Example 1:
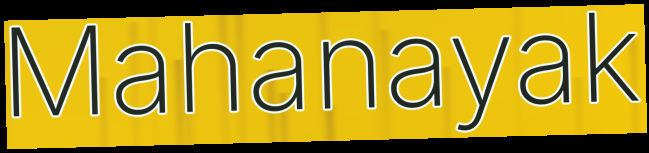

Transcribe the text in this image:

Mahanayak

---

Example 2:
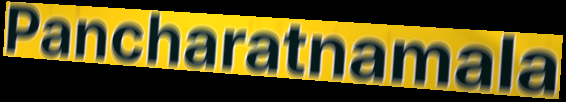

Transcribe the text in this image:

Pancharatnamala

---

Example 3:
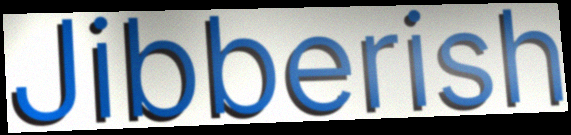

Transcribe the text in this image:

Jibberish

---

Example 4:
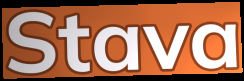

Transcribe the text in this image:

Stava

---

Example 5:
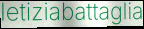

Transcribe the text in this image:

letiziabattaglia